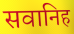
सवानिह